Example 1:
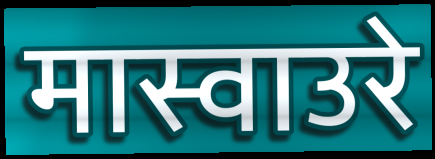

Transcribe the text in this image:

मास्वाउरे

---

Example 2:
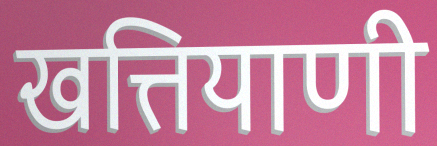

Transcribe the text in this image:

खत्तियाणी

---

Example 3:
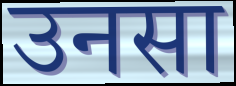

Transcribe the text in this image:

उनसा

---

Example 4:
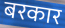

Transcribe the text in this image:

बरकार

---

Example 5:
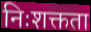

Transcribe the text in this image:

निःशक्तता